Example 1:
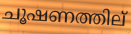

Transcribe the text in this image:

ചൂഷണത്തില്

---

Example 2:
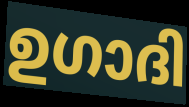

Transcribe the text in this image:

ഉഗാദി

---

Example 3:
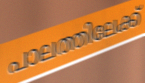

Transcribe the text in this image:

പാലത്തിലേക്ക്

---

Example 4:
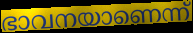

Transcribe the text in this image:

ഭാവനയാണെന്ന്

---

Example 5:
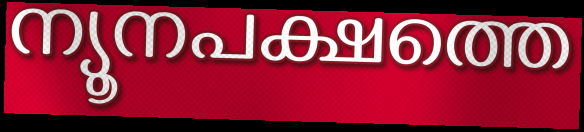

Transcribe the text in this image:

ന്യൂനപക്ഷത്തെ